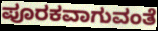
ಪೂರಕವಾಗುವಂತೆ